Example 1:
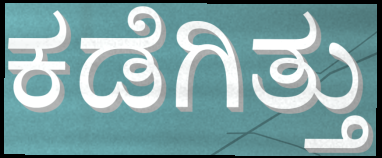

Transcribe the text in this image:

ಕಡೆಗಿತ್ತು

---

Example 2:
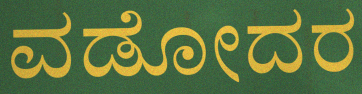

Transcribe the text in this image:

ವಡೋದರ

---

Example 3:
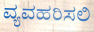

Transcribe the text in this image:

ವ್ಯವಹರಿಸಲಿ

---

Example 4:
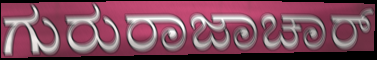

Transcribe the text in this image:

ಗುರುರಾಜಾಚಾರ್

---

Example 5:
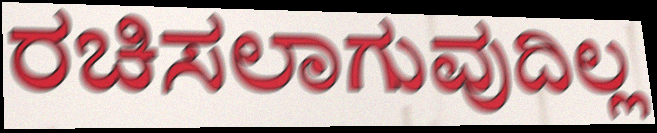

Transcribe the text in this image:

ರಚಿಸಲಾಗುವುದಿಲ್ಲ